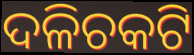
ଦଳିଚକଟି